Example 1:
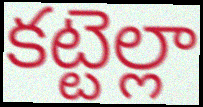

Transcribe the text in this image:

కట్టెల్లా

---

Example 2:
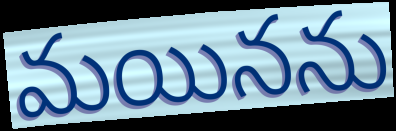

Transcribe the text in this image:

మయినను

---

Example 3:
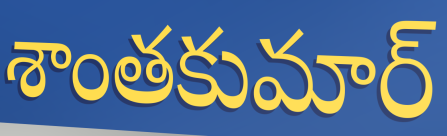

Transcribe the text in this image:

శాంతకుమార్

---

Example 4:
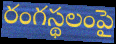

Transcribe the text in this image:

రంగస్థలంపై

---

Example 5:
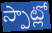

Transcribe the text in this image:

స్పాట్లో